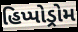
હિપ્પોડ્રોમ